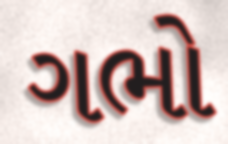
ગભો